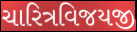
ચારિત્રવિજયજી